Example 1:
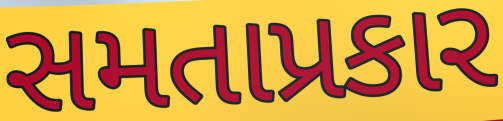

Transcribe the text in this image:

સમતાપ્રકાર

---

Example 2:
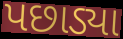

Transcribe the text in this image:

પછાડ્યા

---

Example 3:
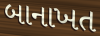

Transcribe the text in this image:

બાનાખત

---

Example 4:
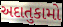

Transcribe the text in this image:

અદાતુકામો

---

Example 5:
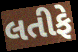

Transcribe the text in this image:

લતીફે